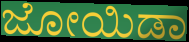
ಜೋಯಿಡಾ